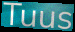
Tuus